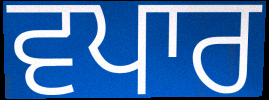
ਵਪਾਰ